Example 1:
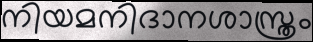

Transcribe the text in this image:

നിയമനിദാനശാസ്ത്രം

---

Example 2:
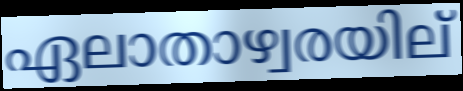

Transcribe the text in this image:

ഏലാതാഴ്വരയില്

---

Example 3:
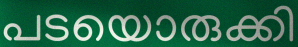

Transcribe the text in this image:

പടയൊരുക്കി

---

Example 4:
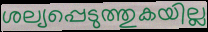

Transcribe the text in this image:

ശല്യപ്പെടുത്തുകയില്ല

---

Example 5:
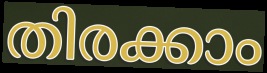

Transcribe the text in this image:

തിരക്കാം